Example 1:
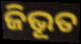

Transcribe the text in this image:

ଜିଭୂତ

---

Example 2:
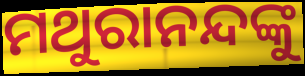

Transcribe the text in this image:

ମଥୁରାନନ୍ଦଙ୍କୁ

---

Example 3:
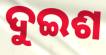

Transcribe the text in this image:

ଦୁଇଶ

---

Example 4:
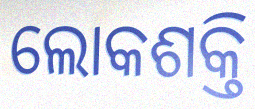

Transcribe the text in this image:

ଲୋକଶକ୍ତି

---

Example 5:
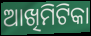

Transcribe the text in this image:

ଆଖିମିଟିକା